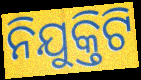
ନିଯୁକ୍ତିଟି